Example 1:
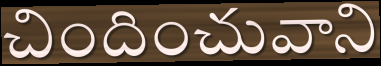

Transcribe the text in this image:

చిందించువాని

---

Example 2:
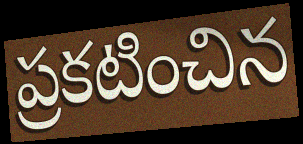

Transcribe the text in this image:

ప్రకటించిన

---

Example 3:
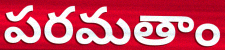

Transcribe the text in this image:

పరమతాం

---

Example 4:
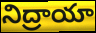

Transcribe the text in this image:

నిద్రాయా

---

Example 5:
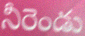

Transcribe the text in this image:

నీరెండు